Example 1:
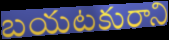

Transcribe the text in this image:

బయటకురాని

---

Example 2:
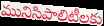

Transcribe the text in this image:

మునిసిపాలిటీలకు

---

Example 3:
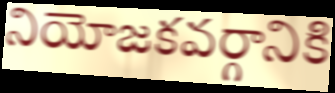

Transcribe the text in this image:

నియోజకవర్గానికి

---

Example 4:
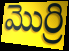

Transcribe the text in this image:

మొర్రి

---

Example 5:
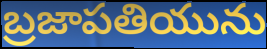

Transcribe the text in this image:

బ్రజాపతియును